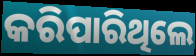
କରିପାରିଥିଲେ